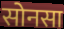
सोनसा